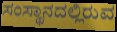
ಸಂಸ್ಥಾನದಲ್ಲಿರುವ